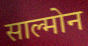
साल्मोन